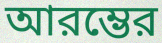
আরম্ভের